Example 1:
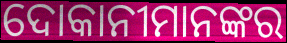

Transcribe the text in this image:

ଦୋକାନୀମାନଙ୍କର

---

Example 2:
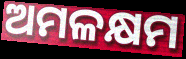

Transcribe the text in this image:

ଅମଳକ୍ଷମ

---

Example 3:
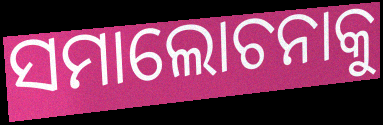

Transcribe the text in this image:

ସମାଲୋଚନାକୁ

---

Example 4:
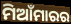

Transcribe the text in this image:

ମିଆଁମାରର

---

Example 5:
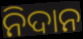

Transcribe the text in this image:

ନିଦାନ